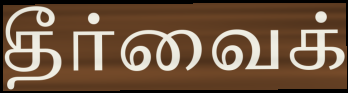
தீர்வைக்